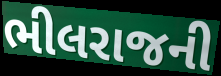
ભીલરાજની